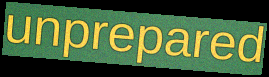
unprepared